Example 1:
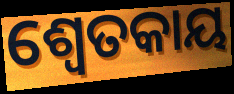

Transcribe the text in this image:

ଶ୍ବେତକାୟ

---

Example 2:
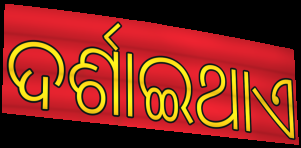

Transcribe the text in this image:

ଦର୍ଶାଇଥାଏ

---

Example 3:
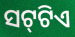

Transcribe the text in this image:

ସଟ୍‍ଟିଏ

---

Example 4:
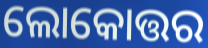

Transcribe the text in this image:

ଲୋକୋତ୍ତର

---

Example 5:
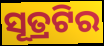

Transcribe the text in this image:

ସୂତ୍ରଟିର